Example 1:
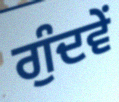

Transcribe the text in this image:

ਗੁੰਦਵੇਂ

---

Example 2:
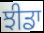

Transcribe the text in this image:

ਝੀਡਾ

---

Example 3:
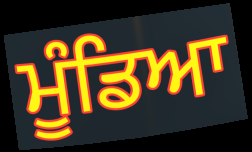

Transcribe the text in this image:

ਮੂੰਡਿਆ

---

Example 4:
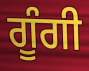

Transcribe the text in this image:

ਗੂੰਗੀ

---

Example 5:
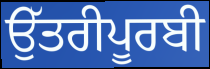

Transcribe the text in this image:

ਉੱਤਰੀਪੂਰਬੀ